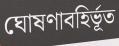
ঘোষণাবহির্ভূত